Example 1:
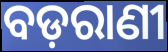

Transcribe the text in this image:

ବଡ଼ରାଣୀ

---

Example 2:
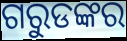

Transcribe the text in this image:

ଗରୁଡଙ୍କର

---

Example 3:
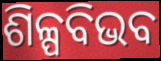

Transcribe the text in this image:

ଶିଳ୍ପବିଭବ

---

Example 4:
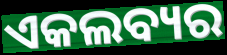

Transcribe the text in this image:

ଏକଲବ୍ୟର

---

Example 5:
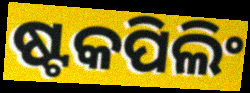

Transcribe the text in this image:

ଷ୍ଟକପିଲିଂ